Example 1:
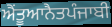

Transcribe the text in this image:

ਐਂਤੂਆਨੈਤਪੰਜਾਬੀ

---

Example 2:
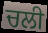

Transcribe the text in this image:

ਚਲੀ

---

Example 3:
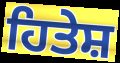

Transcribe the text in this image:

ਹਿਤੇਸ਼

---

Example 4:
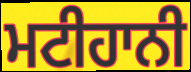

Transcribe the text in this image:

ਮਟੀਹਾਨੀ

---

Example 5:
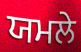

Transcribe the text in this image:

ਯਮਲੇ